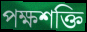
পক্ষশক্তি